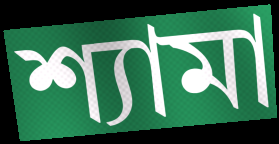
শ্যামা